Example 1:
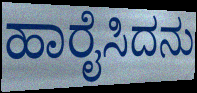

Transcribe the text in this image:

ಹಾರೈಸಿದನು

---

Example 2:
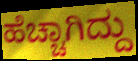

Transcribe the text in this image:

ಹೆಚ್ಚಾಗಿದ್ದು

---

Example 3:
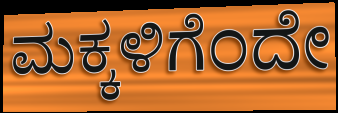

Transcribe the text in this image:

ಮಕ್ಕಳಿಗೆಂದೇ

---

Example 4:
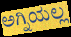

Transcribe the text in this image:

ಅಗ್ನಿಯಲ್ಲ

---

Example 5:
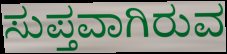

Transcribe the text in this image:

ಸುಪ್ತವಾಗಿರುವ